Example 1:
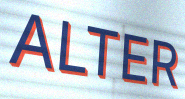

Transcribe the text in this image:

ALTER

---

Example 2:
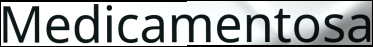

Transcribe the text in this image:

Medicamentosa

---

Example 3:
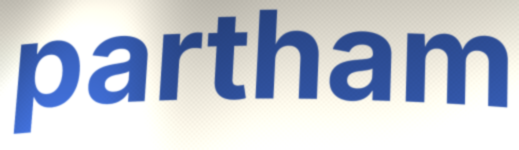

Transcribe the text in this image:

partham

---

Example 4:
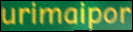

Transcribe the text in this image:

urimaipor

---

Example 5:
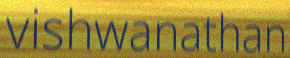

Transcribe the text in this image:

vishwanathan